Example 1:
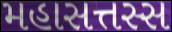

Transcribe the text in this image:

મહાસત્તસ્સ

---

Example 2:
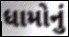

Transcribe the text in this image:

ધામોનું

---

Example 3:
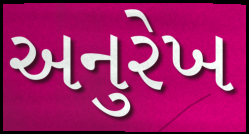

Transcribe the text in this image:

અનુરેખ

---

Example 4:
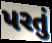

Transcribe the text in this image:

પરતું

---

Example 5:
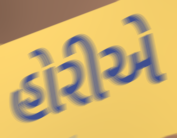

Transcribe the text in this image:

હોરીએ